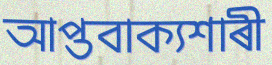
আপ্তবাক্যশাৰী